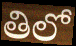
తిలో